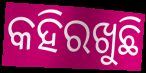
କହିରଖୁଛି